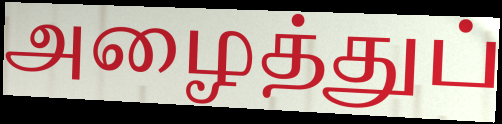
அழைத்துப்